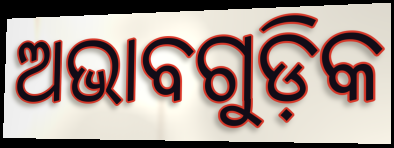
ଅଭାବଗୁଡ଼ିକ